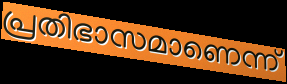
പ്രതിഭാസമാണെന്ന്